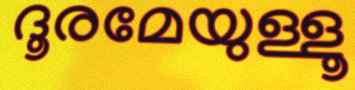
ദൂരമേയുള്ളൂ